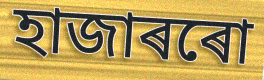
হাজাৰৰো